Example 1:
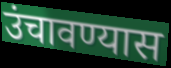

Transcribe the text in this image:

उंचावण्यास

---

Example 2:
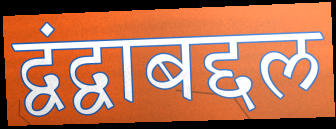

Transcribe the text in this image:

द्वंद्वाबद्दल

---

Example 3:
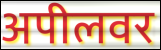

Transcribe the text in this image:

अपीलवर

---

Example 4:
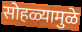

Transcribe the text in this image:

सोहळ्यामुळे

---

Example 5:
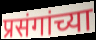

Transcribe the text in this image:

प्रसंगांच्या